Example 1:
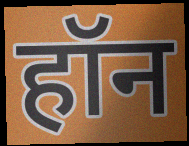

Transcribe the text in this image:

हॉन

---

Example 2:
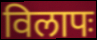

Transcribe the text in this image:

विलापः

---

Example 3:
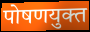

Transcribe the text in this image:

पोषणयुक्त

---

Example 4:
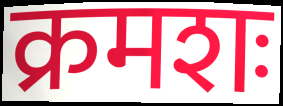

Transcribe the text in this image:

क्रमशः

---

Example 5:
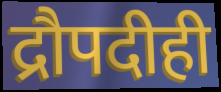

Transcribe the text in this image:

द्रौपदीही